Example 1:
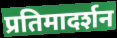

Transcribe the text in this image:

प्रतिमादर्शन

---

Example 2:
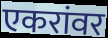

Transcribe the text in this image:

एकरांवर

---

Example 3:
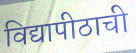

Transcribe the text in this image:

विद्यापीठाची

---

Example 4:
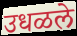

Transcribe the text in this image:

उधळले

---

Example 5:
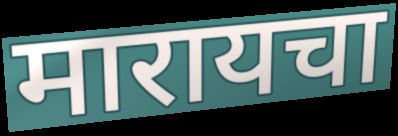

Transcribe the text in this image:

मारायचा